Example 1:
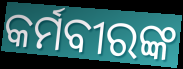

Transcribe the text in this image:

କର୍ମବୀରଙ୍କ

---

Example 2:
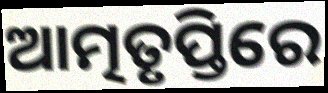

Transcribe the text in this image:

ଆତ୍ମତୃପ୍ତିରେ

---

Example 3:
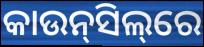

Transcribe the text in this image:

କାଉନ୍‌ସିଲ୍‌ରେ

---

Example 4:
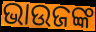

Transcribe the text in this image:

ଭାଉଜଙ୍କ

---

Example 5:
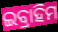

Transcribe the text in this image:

ଇବ୍ରାହିମ